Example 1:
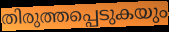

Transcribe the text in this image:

തിരുത്തപ്പെടുകയും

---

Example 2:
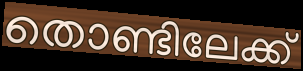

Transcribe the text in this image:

തൊണ്ടിലേക്ക്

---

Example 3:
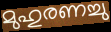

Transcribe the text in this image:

മുഹുരണച്ചു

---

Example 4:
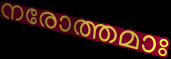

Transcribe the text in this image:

നരോത്തമാഃ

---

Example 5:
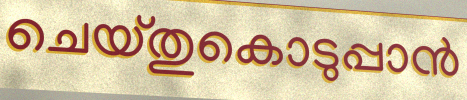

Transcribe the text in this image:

ചെയ്തുകൊടുപ്പാൻ